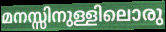
മനസ്സിനുള്ളിലൊരു